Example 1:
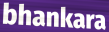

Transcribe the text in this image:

bhankara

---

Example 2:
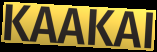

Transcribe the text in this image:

KAAKAI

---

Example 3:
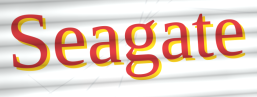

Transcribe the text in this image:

Seagate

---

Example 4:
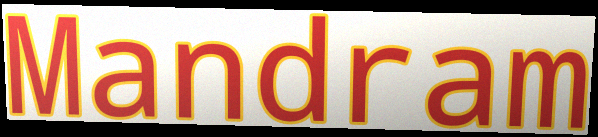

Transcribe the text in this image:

Mandram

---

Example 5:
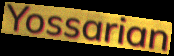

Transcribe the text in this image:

Yossarian